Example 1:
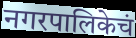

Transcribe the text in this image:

नगरपालिकेचं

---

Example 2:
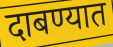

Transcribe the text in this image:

दाबण्यात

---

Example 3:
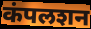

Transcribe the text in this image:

कंपलशन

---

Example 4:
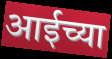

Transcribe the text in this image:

आईच्या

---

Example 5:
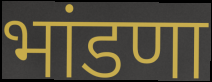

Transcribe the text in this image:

भांडणा